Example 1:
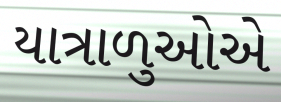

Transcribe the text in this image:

યાત્રાળુઓએ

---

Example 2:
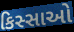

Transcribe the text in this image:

કિસ્સાઓ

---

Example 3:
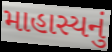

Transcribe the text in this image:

માહાસ્યનું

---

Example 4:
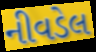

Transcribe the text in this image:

નીવડેલ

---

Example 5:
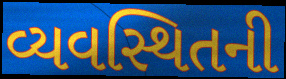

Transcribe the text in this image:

વ્યવસ્થિતની